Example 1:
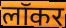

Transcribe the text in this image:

लॉकर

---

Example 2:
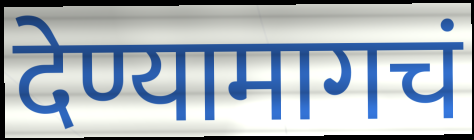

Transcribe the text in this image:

देण्यामागचं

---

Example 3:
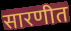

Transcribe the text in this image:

सारणीत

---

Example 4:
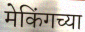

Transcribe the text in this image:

मेकिंगच्या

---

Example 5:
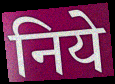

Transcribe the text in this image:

निये